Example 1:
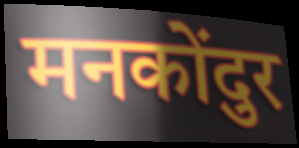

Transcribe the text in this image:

मनकोंदुर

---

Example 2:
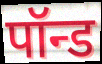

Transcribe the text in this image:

पॉन्ड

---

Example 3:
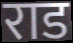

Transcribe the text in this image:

राड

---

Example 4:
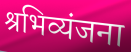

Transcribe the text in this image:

श्रभिव्यंजना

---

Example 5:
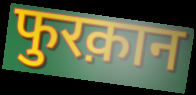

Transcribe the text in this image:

फुरक़ान